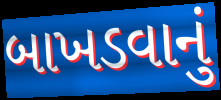
બાખડવાનું